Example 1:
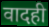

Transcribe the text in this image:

वादही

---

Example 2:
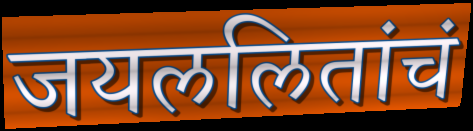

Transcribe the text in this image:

जयललितांचं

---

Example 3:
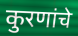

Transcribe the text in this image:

कुरणांचे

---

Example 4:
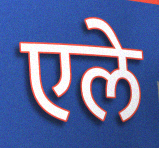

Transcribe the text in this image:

एले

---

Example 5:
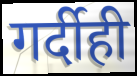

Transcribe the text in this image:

गर्दीही